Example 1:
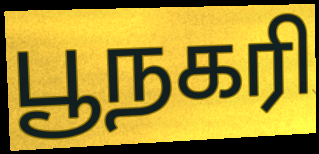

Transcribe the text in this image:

பூநகரி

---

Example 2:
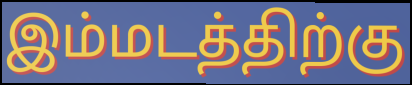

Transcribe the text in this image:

இம்மடத்திற்கு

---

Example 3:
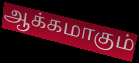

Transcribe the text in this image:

ஆக்கமாகும்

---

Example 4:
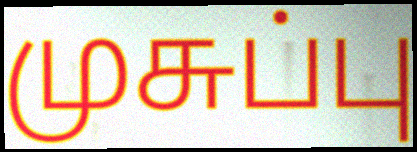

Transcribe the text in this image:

முசுப்பு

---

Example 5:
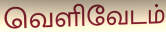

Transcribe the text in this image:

வெளிவேடம்